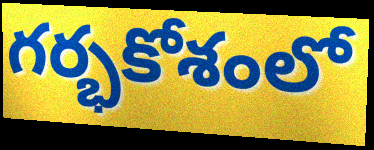
గర్భకోశంలో